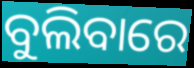
ବୁଲିବାରେ